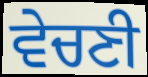
ਵੇਚਣੀ